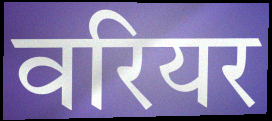
वरियर